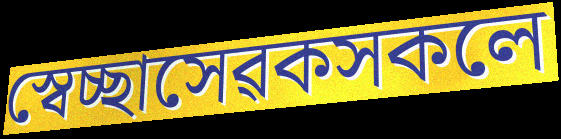
স্বেচ্ছাসেৱকসকলে